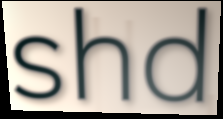
shd